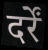
दर्रें